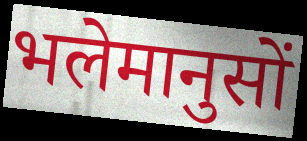
भलेमानुसों